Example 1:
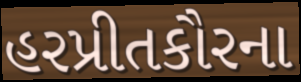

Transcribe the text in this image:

હરપ્રીતકૌરના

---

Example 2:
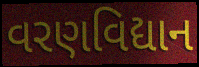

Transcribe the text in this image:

વરણવિદ્યાન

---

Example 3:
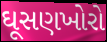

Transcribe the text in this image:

ઘૂસણખોરો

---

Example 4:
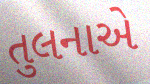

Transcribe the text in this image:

તુલનાએ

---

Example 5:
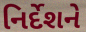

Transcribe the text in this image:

નિર્દેશને